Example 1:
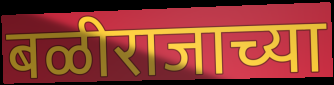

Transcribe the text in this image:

बळीराजाच्या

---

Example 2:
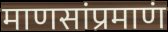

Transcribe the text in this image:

माणसांप्रमाणं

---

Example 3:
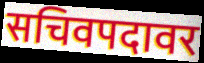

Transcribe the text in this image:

सचिवपदावर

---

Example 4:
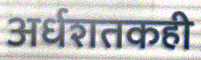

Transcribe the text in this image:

अर्धशतकही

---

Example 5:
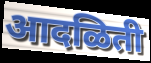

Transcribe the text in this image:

आदळिती